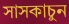
সাসকাচুন